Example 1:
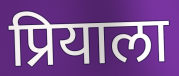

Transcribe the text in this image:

प्रियाला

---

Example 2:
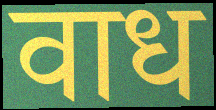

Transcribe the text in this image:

वाध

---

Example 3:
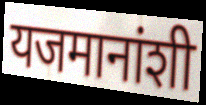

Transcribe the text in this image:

यजमानांशी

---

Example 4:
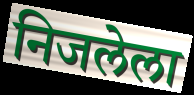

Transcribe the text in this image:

निजलेला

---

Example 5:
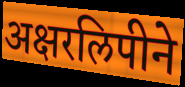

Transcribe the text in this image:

अक्षरलिपीने